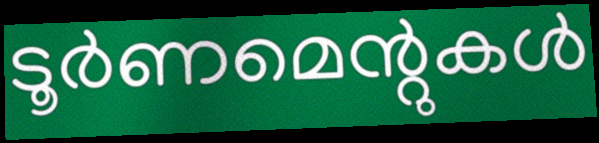
ടൂർണമെന്റുകൾ